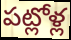
పట్లోళ్ల